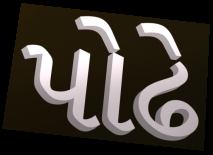
પોઢે